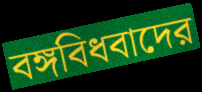
বঙ্গবিধবাদের